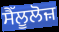
ਸੈੱਲੂਲੋਜ਼